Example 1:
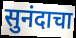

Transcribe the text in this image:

सुनंदाचा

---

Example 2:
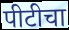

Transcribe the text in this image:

पीटीचा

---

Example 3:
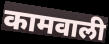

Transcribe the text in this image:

कामवाली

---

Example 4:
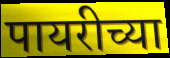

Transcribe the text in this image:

पायरीच्या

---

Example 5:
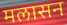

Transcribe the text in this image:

मलासन